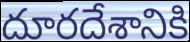
దూరదేశానికి